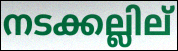
നടക്കല്ലില്